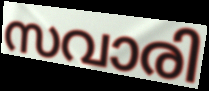
സവാരി